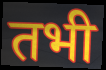
तभी